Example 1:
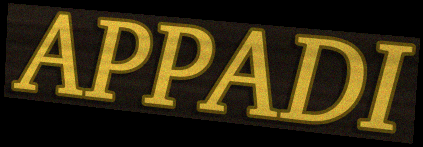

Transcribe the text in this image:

APPADI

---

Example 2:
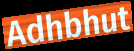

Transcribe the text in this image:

Adhbhut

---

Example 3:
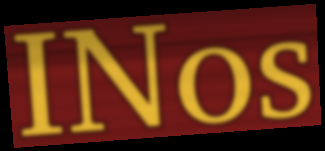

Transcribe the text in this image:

INos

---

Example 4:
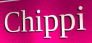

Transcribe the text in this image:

Chippi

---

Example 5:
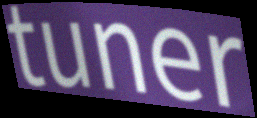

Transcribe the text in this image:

tuner